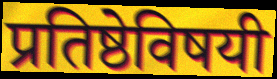
प्रतिष्ठेविषयी